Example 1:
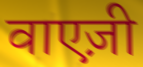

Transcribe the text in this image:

वाएज़ी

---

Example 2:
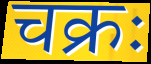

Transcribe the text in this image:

चक्रः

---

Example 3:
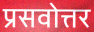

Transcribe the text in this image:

प्रसवोत्तर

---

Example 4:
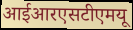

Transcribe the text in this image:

आईआरएसटीएमयू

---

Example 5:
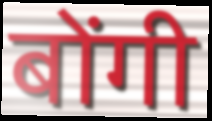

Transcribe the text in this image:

बोंगी